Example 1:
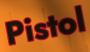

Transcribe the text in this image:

Pistol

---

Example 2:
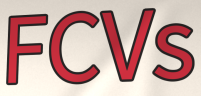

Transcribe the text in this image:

FCVs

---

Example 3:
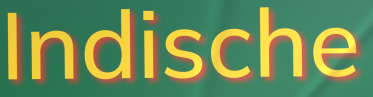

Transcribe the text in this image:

Indische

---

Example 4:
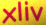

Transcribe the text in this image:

xliv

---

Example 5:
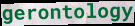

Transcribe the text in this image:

gerontology